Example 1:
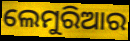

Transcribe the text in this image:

ଲେମୁରିଆର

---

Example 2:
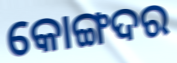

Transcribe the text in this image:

କୋଙ୍ଗଦର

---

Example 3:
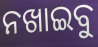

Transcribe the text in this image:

ନଖାଇବୁ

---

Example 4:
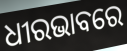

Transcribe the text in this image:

ଧୀରଭାବରେ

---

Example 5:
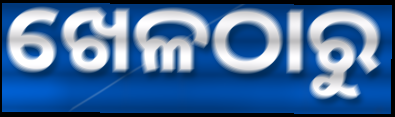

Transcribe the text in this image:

ଖେଳଠାରୁ